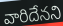
వారిదేనని